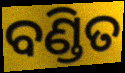
ବଣ୍ଡିତ